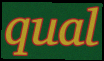
qual